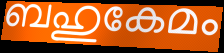
ബഹുകേമം